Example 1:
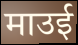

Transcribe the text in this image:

माउई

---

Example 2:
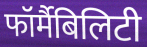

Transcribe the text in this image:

फॉर्मैबिलिटी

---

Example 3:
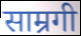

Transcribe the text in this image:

साम्रगी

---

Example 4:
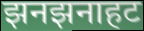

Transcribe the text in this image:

झनझनाहट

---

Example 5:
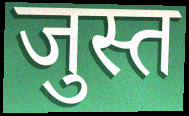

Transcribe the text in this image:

जुस्त